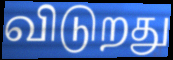
விடுறது